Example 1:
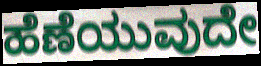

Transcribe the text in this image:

ಹೆಣೆಯುವುದೇ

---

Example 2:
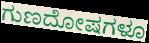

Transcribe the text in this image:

ಗುಣದೋಷಗಳೂ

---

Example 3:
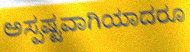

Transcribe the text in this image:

ಅಸ್ಪಷ್ಟವಾಗಿಯಾದರೂ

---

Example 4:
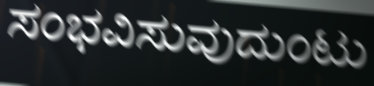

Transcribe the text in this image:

ಸಂಭವಿಸುವುದುಂಟು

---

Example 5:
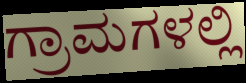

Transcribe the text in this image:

ಗ್ರಾಮಗಳಲ್ಲಿ